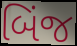
બિંજ